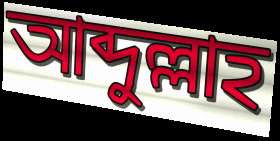
আব্দুল্লাহ